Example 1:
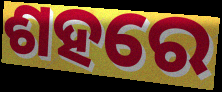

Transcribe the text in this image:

ଶହରେ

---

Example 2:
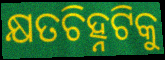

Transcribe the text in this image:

କ୍ଷତଚିହ୍ନଟିକୁ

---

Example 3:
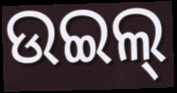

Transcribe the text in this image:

ଉଇଲ୍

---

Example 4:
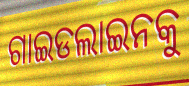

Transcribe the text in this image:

ଗାଇଡଲାଇନକୁ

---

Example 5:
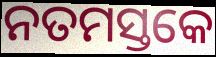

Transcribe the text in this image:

ନତମସ୍ତକେ